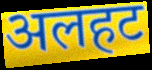
अलहट